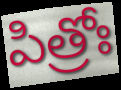
పిత్రోః